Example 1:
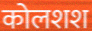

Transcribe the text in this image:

कोलशश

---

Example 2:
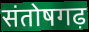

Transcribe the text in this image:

संतोषगढ़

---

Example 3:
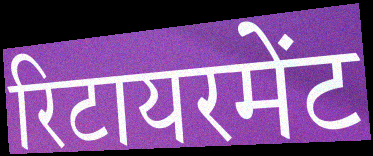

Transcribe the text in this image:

रिटायरमेंट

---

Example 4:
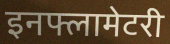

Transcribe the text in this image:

इनफ्लामेटरी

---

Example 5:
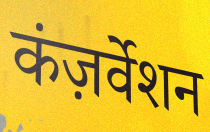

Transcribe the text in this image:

कंज़र्वेशन